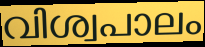
വിശ്വപാലം